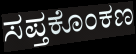
ಸಪ್ತಕೊಂಕಣ